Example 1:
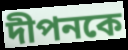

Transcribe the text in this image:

দীপনকে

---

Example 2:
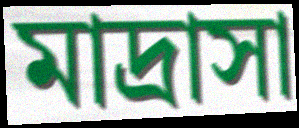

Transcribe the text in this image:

মাদ্রাসা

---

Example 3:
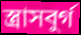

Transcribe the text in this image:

স্ত্রাসবুর্গ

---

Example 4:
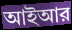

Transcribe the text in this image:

আইআর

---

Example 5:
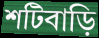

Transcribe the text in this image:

শটিবাড়ি